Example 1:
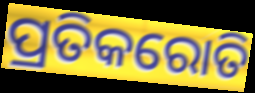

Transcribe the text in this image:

ପ୍ରତିକରୋତି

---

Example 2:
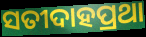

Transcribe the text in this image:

ସତୀଦାହପ୍ରଥା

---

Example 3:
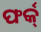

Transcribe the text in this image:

ଫର୍କ୍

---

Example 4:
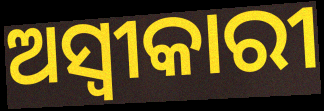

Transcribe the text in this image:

ଅସ୍ଵୀକାରୀ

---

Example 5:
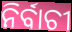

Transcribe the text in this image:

ନିର୍ବାଚୀ